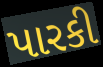
પારકી